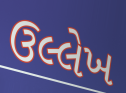
ઉલ્લેખ